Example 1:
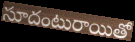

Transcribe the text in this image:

సూదంటురాయితో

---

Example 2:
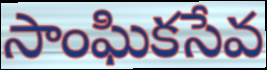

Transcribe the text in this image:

సాంఘికసేవ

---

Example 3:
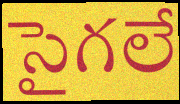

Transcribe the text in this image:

సైగలే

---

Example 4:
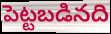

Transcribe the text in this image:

పెట్టబడినది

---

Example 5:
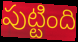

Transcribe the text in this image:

పుట్టింది